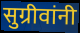
सुग्रीवांनी